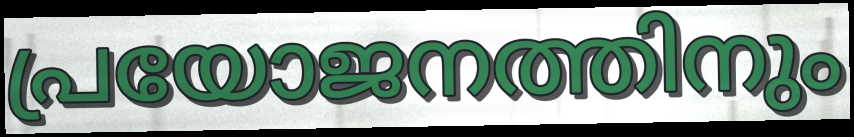
പ്രയോജനത്തിനും